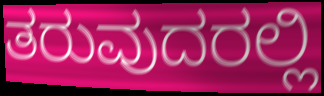
ತರುವುದರಲ್ಲಿ